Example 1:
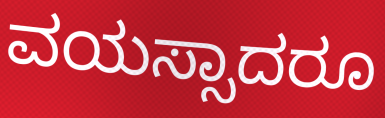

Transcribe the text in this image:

ವಯಸ್ಸಾದರೂ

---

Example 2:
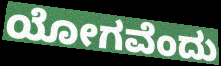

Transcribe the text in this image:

ಯೋಗವೆಂದು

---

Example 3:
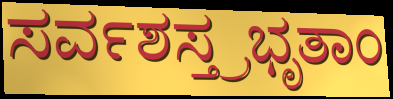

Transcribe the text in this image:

ಸರ್ವಶಸ್ತ್ರಭೃತಾಂ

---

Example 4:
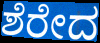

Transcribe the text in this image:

ಶೆರೇದ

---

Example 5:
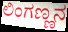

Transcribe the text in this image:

ಲಿಂಗಣ್ಣನ